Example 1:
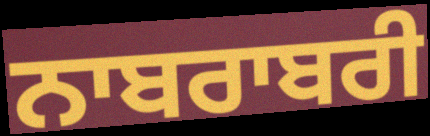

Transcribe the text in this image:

ਨਾਬਰਾਬਰੀ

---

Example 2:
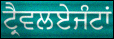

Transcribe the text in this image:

ਟ੍ਰੈਵਲਏਜੰਟਾਂ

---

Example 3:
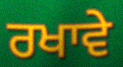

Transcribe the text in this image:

ਰਖਾਵੇ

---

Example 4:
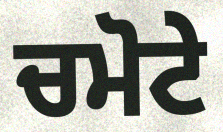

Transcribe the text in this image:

ਚਮੋਟੇ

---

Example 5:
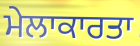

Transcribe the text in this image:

ਮੇਲਾਕਾਰਤਾ